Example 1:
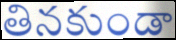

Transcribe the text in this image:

తినకుండా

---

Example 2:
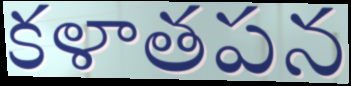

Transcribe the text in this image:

కళాతపన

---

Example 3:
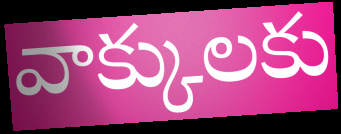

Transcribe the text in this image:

వాక్కులకు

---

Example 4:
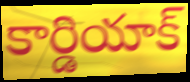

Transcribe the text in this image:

కార్డియాక్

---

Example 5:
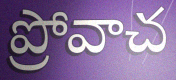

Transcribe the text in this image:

ప్రోవాచ